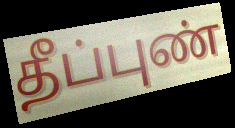
தீப்புண்